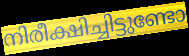
നിരീക്ഷിച്ചിട്ടുണ്ടോ